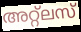
അറ്റ്ലസ്